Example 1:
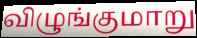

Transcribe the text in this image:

விழுங்குமாறு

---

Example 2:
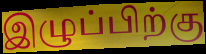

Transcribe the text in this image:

இழுப்பிற்கு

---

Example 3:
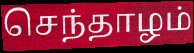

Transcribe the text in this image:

செந்தாழம்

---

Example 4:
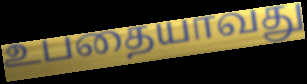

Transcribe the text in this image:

உபதையாவது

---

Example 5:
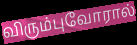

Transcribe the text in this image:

விரும்புவோரால்